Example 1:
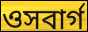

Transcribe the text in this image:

ওসবার্গ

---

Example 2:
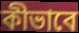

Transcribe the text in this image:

কীভাবে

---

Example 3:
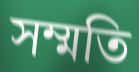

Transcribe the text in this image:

সম্মতি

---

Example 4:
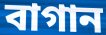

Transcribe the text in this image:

বাগান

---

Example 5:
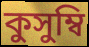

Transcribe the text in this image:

কুসুম্বি